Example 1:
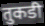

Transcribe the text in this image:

तुकडी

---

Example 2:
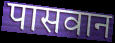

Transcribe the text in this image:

पासवान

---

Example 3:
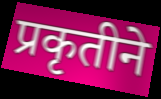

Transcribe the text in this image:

प्रकृतीने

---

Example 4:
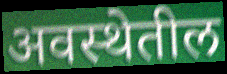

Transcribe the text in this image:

अवस्थेतील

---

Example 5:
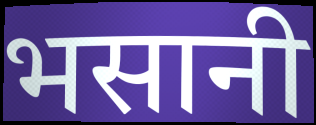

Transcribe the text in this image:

भसानी